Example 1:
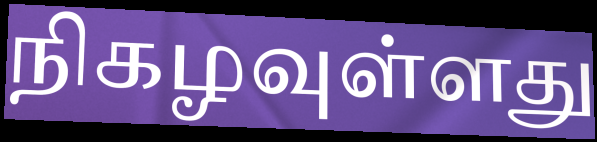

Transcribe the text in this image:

நிகழவுள்ளது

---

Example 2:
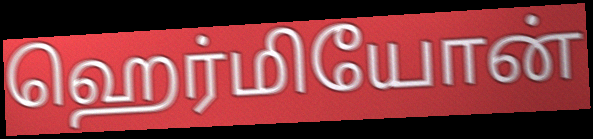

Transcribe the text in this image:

ஹெர்மியோன்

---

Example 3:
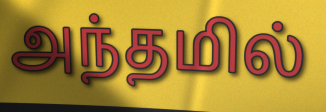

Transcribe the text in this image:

அந்தமில்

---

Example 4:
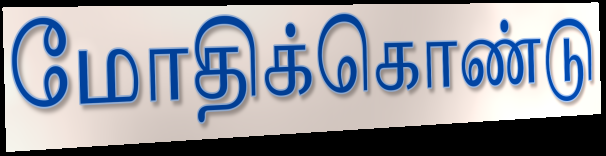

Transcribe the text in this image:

மோதிக்கொண்டு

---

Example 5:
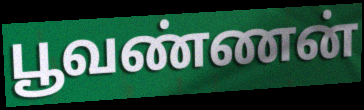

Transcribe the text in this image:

பூவண்ணன்